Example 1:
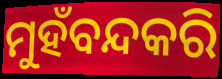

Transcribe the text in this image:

ମୁହଁବନ୍ଦକରି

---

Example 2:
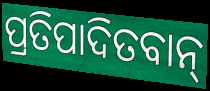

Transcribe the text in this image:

ପ୍ରତିପାଦିତବାନ୍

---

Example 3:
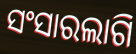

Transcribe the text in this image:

ସଂସାରଲାଗି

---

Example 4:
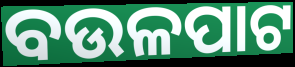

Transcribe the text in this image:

ବଉଳପାଟ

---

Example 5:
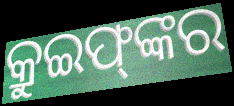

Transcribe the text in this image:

କ୍ରୁଇଫ୍‌ଙ୍କର